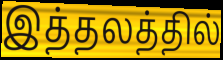
இத்தலத்தில்